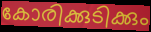
കോരിക്കുടിക്കും